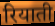
रियाती